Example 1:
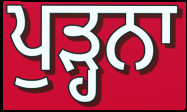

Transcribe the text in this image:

ਪੁੜ੍ਹਨਾ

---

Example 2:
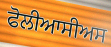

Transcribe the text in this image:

ਫੋਲੀਆਸੀਅਸ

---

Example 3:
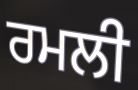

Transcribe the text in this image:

ਰਮਲੀ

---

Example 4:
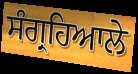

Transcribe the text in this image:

ਸੰਗ੍ਰਹਿਆਲੇ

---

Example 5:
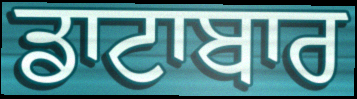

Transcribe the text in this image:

ਡਾਟਾਬਾਰ